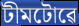
টীমটোৱে